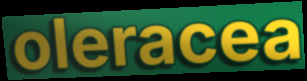
oleracea